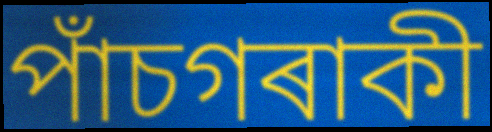
পাঁচগৰাকী